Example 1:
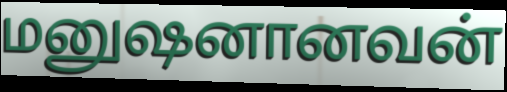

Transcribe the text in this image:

மனுஷனானவன்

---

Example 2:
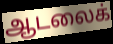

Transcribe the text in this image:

ஆடலைக்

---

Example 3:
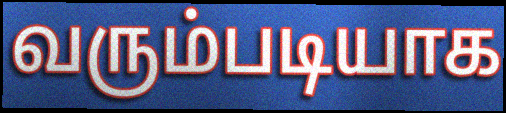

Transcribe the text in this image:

வரும்படியாக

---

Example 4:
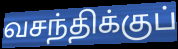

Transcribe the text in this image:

வசந்திக்குப்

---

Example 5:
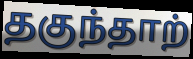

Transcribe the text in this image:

தகுந்தாற்